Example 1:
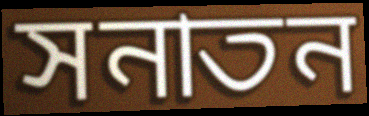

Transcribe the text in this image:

সনাতন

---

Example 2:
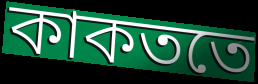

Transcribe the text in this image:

কাকততে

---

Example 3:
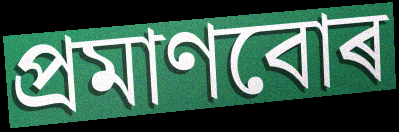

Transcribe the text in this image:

প্ৰমাণবোৰ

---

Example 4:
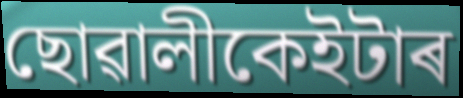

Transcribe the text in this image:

ছোৱালীকেইটাৰ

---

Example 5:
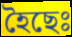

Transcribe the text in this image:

হৈছেঃ